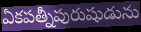
ఏకపత్నీపురుషుడును